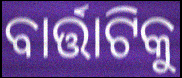
ବାର୍ତ୍ତାଟିକୁ